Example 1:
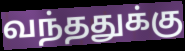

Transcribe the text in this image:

வந்ததுக்கு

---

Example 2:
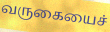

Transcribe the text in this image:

வருகையைச்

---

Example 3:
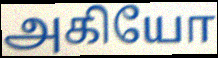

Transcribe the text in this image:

அகியோ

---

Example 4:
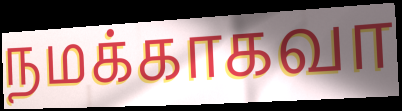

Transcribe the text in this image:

நமக்காகவா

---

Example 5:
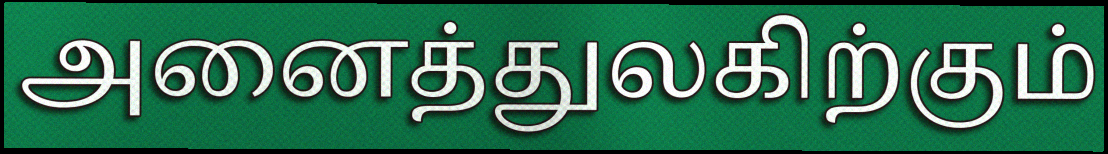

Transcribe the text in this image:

அனைத்துலகிற்கும்